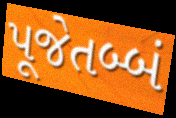
પૂજેતબ્બં